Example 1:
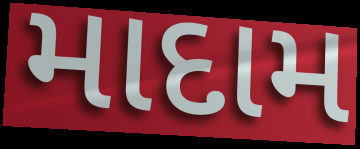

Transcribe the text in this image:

માદામ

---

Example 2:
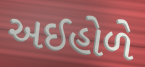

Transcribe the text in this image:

અઈહોળે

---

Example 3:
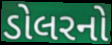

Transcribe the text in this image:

ડોલરનો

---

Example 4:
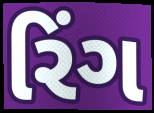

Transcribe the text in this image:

રિંગ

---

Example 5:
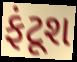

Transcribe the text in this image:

ફંટૂશ